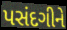
પસંદગીને